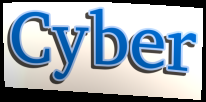
Cyber